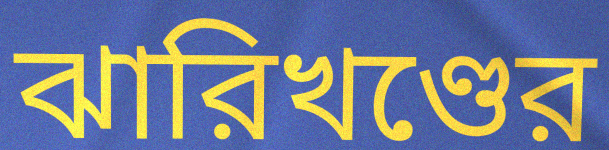
ঝারিখণ্ডের